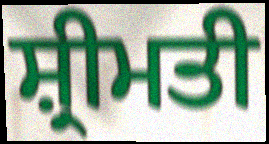
ਸ਼੍ਰੀਮਤੀ